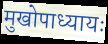
मुखोपाध्यायः